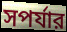
সপর্যার